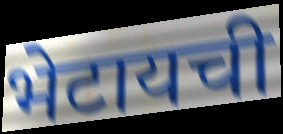
भेटायची